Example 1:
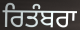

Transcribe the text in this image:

ਰਿਤੰਬਰਾ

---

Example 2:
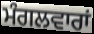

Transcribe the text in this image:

ਮੰਗਲਵਾਰਾਂ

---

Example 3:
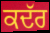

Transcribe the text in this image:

ਕਦੱਰ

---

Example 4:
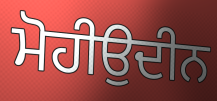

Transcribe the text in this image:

ਮੋਹੀਉਦੀਨ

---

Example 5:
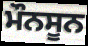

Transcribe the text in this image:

ਮੌਨਸੂਨ